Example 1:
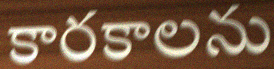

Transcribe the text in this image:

కారకాలను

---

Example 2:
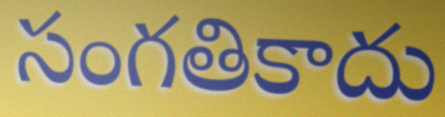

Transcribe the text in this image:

సంగతికాదు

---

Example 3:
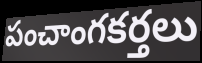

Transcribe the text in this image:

పంచాంగకర్తలు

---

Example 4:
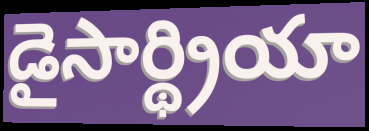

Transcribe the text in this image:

డైసార్థ్రియా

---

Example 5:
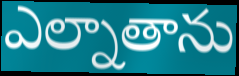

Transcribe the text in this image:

ఎల్నాతాను